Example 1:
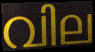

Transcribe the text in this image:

വില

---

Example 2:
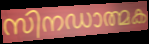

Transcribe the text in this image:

സിനഡാത്മക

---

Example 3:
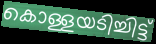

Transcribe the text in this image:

കൊള്ളയടിച്ചിട്ട്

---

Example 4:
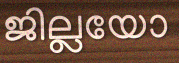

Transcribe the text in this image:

ജില്ലയോ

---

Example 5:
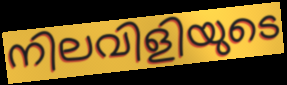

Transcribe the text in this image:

നിലവിളിയുടെ